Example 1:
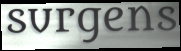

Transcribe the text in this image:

surgens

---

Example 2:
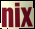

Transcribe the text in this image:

nix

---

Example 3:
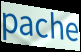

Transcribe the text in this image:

pache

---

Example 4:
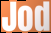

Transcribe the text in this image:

Jod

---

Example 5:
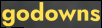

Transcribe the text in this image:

godowns